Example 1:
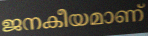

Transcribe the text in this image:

ജനകീയമാണ്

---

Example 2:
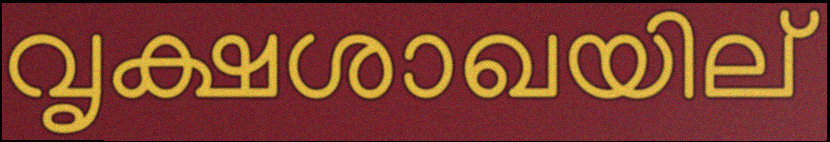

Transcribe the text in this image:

വൃക്ഷശാഖയില്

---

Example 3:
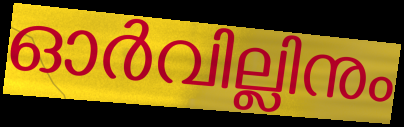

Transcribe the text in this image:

ഓർവില്ലിനും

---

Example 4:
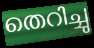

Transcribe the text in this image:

തെറിച്ചു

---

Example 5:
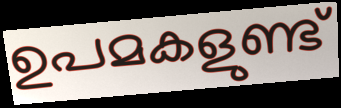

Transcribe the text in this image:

ഉപമകളുണ്ട്